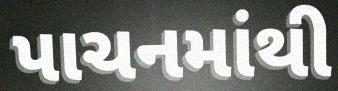
પાચનમાંથી